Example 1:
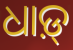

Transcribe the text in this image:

ଧାଡ଼୍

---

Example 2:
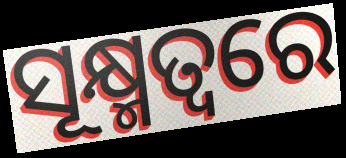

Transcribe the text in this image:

ସୂକ୍ଷ୍ମତ୍ୱରେ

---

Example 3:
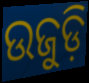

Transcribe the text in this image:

ଉଜୁଡ଼ି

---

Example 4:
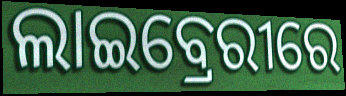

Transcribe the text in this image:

ଲାଇବ୍ରେରୀରେ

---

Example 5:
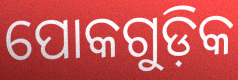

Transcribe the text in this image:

ପୋକଗୁଡ଼ିକ